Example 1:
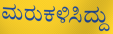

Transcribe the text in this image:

ಮರುಕಳಿಸಿದ್ದು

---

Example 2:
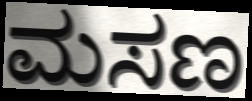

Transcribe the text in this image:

ಮಸಣ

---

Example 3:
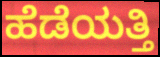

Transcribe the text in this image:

ಹೆಡೆಯತ್ತಿ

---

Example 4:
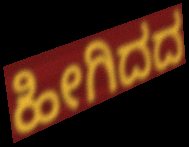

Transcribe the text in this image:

ಹೀಗಿದದ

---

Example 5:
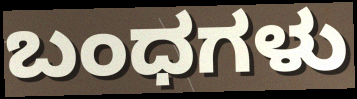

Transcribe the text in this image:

ಬಂಧಗಳು